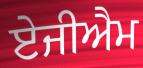
ਏਜੀਐਮ